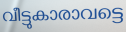
വീട്ടുകാരാവട്ടെ